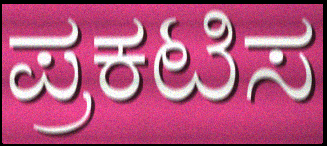
ಪ್ರಕಟಿಸ